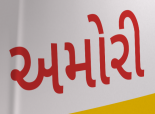
અમોરી